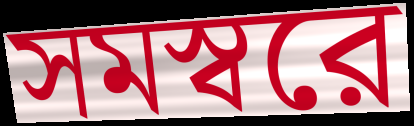
সমস্বরে